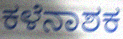
ಕಳೆನಾಶಕ